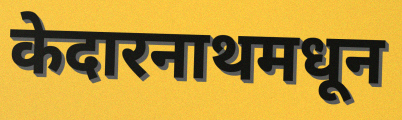
केदारनाथमधून